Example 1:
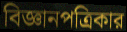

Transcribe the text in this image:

বিজ্ঞানপত্রিকার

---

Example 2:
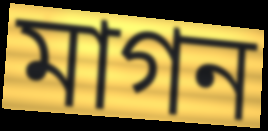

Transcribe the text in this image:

মাগন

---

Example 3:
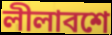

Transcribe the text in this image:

লীলাবশে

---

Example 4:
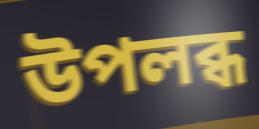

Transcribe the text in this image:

উপলব্ধ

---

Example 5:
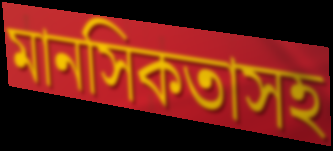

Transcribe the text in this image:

মানসিকতাসহ